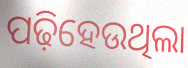
ପଢ଼ିହେଉଥିଲା